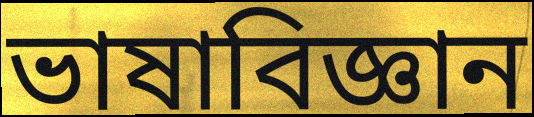
ভাষাবিজ্ঞান